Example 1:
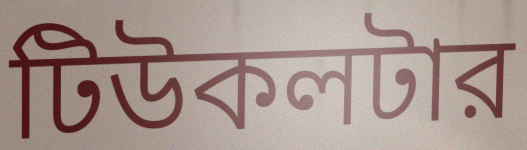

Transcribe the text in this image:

টিউকলটার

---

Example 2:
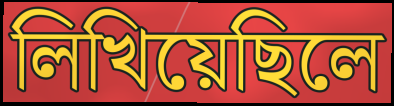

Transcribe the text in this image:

লিখিয়েছিলে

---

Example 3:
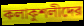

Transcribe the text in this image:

কলাকুশলীদের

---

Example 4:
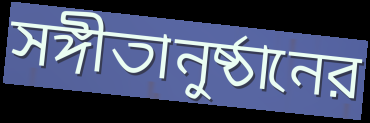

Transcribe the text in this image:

সঙ্গীতানুষ্ঠানের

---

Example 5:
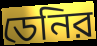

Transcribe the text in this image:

ডেনির